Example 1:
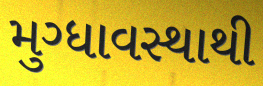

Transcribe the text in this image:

મુગ્ધાવસ્થાથી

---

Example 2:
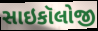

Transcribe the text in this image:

સાઇકૉલોજી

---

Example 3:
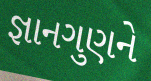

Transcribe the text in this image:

જ્ઞાનગુણને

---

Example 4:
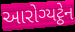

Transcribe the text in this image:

આરોગ્યટ્ઠેન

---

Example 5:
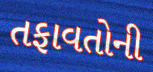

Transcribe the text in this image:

તફાવતોની